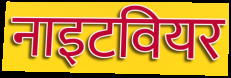
नाइटवियर